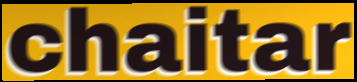
chaitar